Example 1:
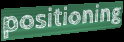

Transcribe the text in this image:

positioning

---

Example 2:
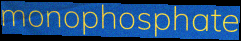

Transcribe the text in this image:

monophosphate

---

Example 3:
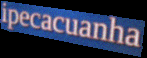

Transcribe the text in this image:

ipecacuanha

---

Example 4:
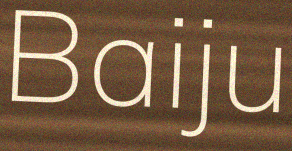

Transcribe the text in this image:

Baiju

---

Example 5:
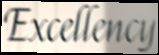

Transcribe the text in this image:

Excellency